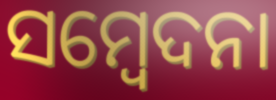
ସମ୍ବେଦନା